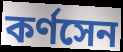
কর্ণসেন